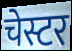
चेस्टर